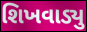
શિખવાડ્યુ